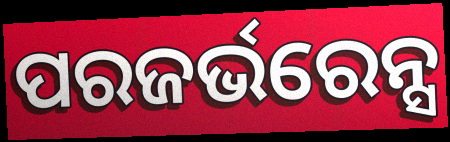
ପରଜର୍ଭରେନ୍ସ